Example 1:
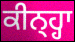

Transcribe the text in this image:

ਕੀਨ੍ਹ੍ਹਾ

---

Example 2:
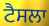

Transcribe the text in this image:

ਟੈਸਲਾ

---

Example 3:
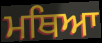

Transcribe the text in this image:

ਮਥਿਆ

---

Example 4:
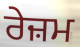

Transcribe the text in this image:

ਰੇਜ਼ਮ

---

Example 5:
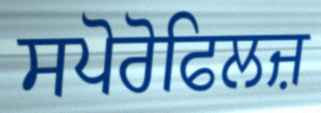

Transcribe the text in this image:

ਸਪੋਰੋਫਿਲਜ਼